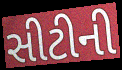
સીટીની